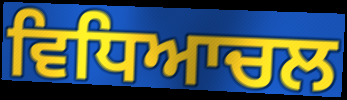
ਵਿਧਿਆਚਲ